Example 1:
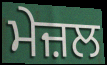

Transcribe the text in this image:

ਮੇਜ਼ਲ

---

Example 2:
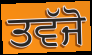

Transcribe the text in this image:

ਤਵੱਜੋ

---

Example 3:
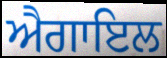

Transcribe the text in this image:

ਐਗਾਇਲ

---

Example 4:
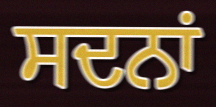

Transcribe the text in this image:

ਸਦਨਾਂ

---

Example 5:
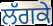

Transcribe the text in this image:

ਲੱਗਕੇ